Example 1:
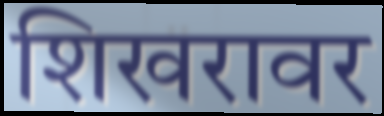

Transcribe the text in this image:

शिखरावर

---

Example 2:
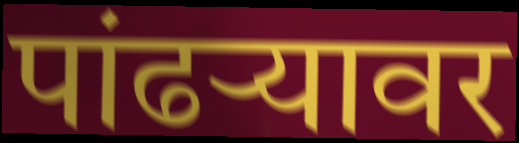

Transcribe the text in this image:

पांढर्‍यावर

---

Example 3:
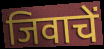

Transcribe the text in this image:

जिवाचें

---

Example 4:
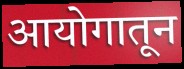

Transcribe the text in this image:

आयोगातून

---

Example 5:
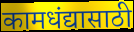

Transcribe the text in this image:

कामधंद्यासाठी